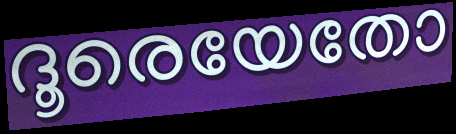
ദൂരെയേതോ